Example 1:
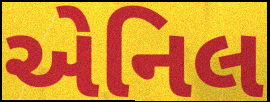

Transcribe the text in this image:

એનિલ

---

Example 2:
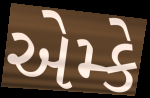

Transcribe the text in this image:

એમ્કે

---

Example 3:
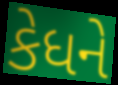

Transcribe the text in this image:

કેધને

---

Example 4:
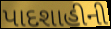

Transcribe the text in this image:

પાદશાહીની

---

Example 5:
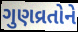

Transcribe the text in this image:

ગુણવ્રતોને